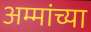
अम्मांच्या